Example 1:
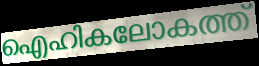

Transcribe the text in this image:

ഐഹികലോകത്ത്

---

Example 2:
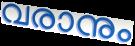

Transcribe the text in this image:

വരാനും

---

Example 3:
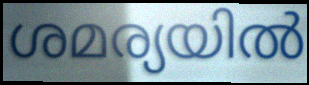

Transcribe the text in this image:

ശമര്യയിൽ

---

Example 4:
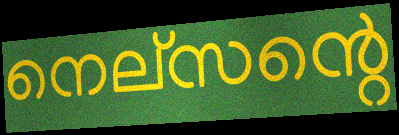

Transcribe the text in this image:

നെല്സന്റെ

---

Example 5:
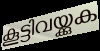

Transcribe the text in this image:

കൂട്ടിവയ്ക്കുക